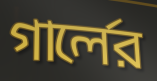
গার্লের